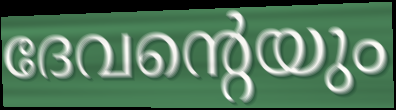
ദേവന്റെയും